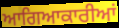
ਆਗਿਆਕਾਰੀਆਂ